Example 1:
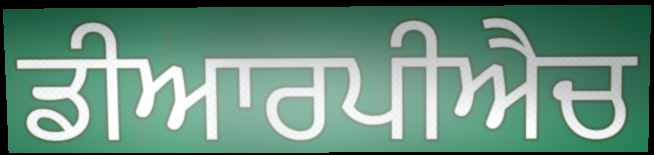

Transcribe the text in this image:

ਡੀਆਰਪੀਐਚ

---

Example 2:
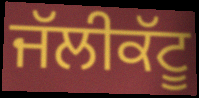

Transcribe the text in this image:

ਜੱਲੀਕੱਟੂ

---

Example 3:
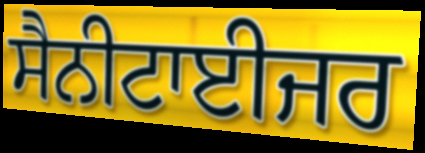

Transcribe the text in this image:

ਸੈਨੀਟਾਈਜਰ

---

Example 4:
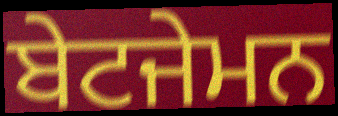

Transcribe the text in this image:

ਬੇਟਜੇਮਨ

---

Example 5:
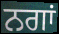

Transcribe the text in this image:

ਨਗਾਂ